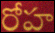
రోహ